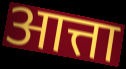
आत्ता